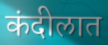
कंदीलात